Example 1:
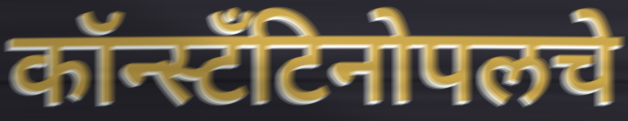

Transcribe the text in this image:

कॉन्स्टँटिनोपलचे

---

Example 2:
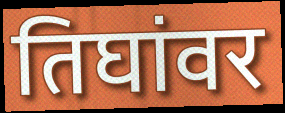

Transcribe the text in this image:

तिघांवर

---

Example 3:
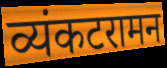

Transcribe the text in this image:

व्यंकटरामन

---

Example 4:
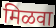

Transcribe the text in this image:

मिळवा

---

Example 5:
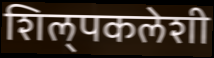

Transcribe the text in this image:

शिल्पकलेशी